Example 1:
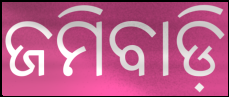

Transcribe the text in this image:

ଜମିବାଡ଼ି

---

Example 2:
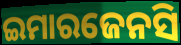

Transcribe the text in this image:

ଇମାରଜେନସି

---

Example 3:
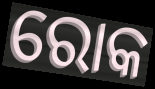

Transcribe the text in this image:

ରୋକ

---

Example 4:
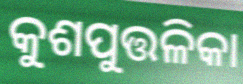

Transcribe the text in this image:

କୁଶପୁତ୍ତଳିକା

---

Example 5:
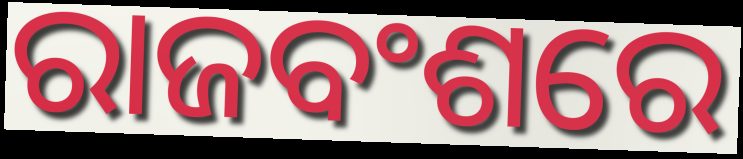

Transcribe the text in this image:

ରାଜବଂଶରେ